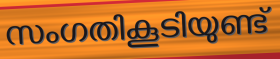
സംഗതികൂടിയുണ്ട്